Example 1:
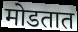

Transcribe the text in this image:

मोडतात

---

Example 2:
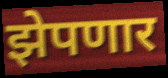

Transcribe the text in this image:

झेपणार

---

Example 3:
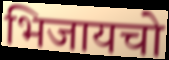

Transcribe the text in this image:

भिजायचो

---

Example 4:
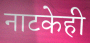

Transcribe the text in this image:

नाटकेही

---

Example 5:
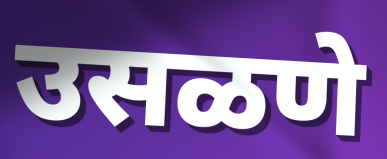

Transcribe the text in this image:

उसळणे